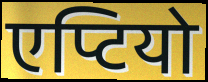
एप्टियो